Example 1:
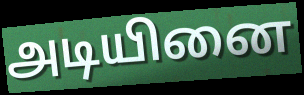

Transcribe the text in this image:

அடியினை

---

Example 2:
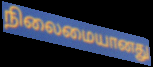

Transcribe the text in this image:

நிலைமையானது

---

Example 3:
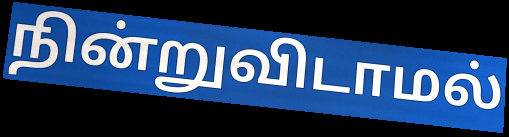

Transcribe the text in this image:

நின்றுவிடாமல்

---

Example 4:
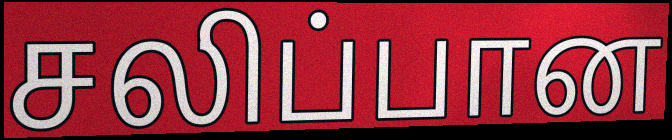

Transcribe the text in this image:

சலிப்பான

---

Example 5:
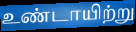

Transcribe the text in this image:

உண்டாயிற்று